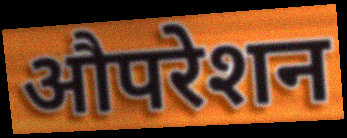
औपरेशन